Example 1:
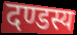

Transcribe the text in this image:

दण्डस्य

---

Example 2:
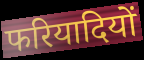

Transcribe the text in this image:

फरियादियों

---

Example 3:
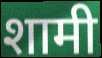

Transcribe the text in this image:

शामी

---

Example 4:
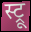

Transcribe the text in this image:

स्ट्रू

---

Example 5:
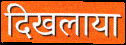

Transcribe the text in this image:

दिखलाया